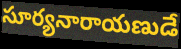
సూర్యనారాయణుడే